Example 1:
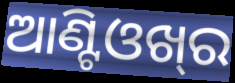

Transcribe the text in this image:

ଆଣ୍ଟିଓଖ୍‍ର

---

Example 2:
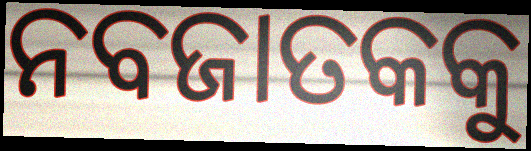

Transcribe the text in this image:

ନବଜାତକକୁ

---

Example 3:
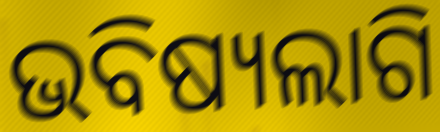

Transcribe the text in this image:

ଭବିଷ୍ୟଲାଗି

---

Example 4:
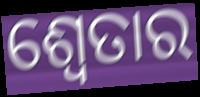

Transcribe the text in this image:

ଶ୍ଵେତାର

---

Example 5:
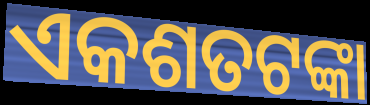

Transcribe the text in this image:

ଏକଶତଟଙ୍କା